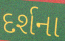
દર્શના